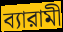
ব্যারামী